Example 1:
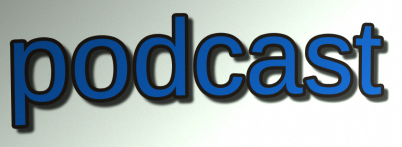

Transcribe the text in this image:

podcast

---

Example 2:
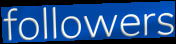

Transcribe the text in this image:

followers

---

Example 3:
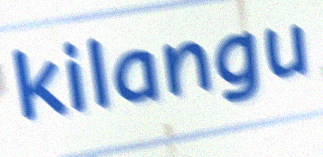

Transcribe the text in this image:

kilangu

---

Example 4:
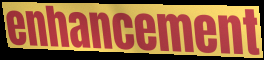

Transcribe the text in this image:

enhancement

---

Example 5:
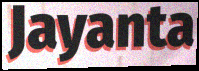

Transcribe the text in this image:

Jayanta